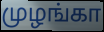
முழங்கா